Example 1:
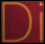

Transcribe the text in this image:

Di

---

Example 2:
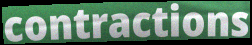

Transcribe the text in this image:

contractions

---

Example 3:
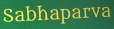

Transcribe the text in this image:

Sabhaparva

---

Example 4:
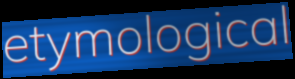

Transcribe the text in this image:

etymological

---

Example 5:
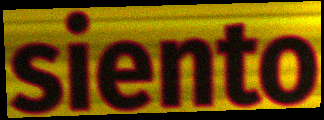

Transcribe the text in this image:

siento